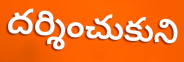
దర్శించుకుని